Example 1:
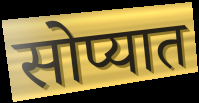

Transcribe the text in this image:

सोप्यात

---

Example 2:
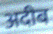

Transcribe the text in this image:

अदीब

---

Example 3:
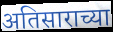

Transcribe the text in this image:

अतिसाराच्या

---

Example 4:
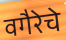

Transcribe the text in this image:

वगैरेचे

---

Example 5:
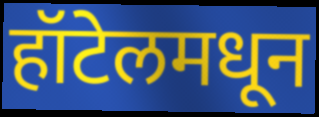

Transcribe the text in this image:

हॉटेलमधून